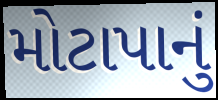
મોટાપાનું